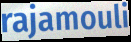
rajamouli